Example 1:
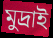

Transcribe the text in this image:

মুদ্রাই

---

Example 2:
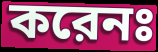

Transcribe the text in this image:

করেনঃ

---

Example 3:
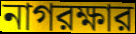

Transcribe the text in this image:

নাগরক্ষার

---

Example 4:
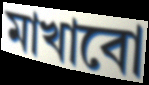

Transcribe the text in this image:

মাখাবো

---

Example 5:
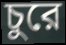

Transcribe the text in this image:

চুরে